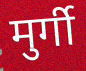
मुर्गी